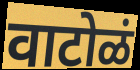
वाटोळं